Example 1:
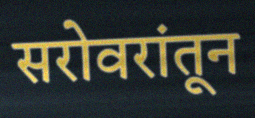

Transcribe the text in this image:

सरोवरांतून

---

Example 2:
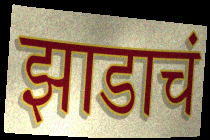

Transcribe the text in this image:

झाडाचं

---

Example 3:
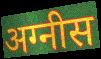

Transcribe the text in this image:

अग्नीस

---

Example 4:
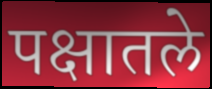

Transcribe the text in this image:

पक्षातले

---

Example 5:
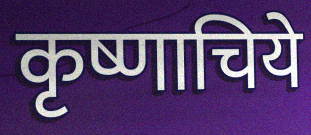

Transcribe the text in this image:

कृष्णाचिये